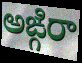
అఙ్గిరా